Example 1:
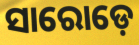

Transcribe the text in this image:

ସାରୋଡ଼େ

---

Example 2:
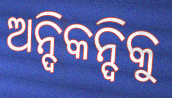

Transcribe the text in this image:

ଅନ୍ଦିକନ୍ଦିକୁ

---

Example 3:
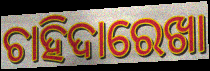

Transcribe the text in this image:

ଚାହିଦାରେଖା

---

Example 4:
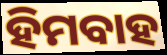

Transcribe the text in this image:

ହିମବାହ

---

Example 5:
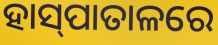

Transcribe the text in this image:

ହାସ୍‌ପାତାଳରେ